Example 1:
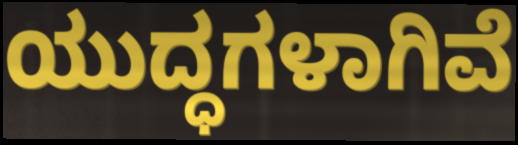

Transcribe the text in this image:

ಯುದ್ಧಗಳಾಗಿವೆ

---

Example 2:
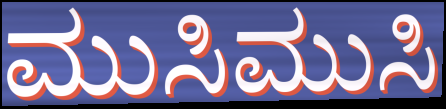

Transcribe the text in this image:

ಮುಸಿಮುಸಿ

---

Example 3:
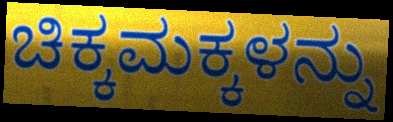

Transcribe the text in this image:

ಚಿಕ್ಕಮಕ್ಕಳನ್ನು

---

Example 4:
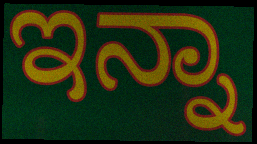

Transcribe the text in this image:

ಇನ್ನಾ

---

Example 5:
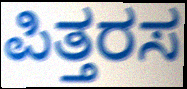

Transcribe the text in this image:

ಪಿತ್ತರಸ